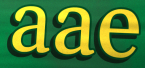
aae